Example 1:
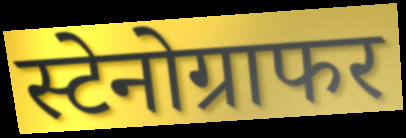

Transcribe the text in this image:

स्टेनोग्राफर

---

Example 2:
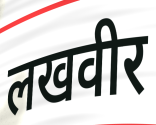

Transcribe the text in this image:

लखवीर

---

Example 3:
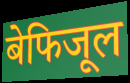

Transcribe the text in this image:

बेफिजूल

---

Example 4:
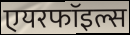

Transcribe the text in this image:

एयरफॉइल्स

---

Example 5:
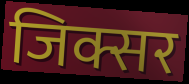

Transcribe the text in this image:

जिक्सर